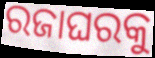
ରଜାଘରକୁ